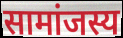
सामांजस्य